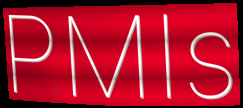
PMIs